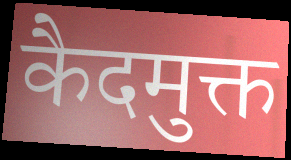
कैदमुक्त